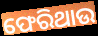
ଫେରିଥାଉ